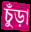
চুঁড়া